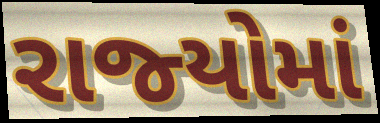
રાજ્‍યોમાં